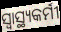
ସ୍ୱାସ୍ଥ୍ୟକର୍ମୀ